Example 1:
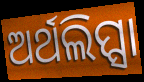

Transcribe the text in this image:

ଅର୍ଥଲିପ୍ସା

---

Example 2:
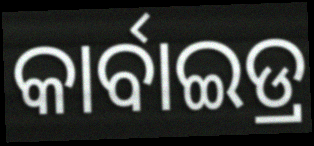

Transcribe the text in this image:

କାର୍ବାଇଡ୍ର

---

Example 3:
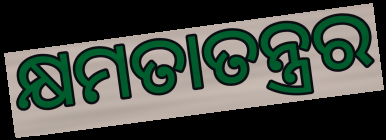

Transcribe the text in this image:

କ୍ଷମତାତନ୍ତ୍ରର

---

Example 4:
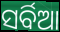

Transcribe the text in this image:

ସର୍ବିଆ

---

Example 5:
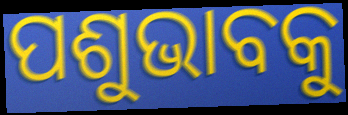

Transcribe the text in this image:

ପଶୁଭାବକୁ